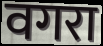
वगरा